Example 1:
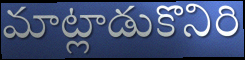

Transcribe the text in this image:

మాట్లాడుకొనిరి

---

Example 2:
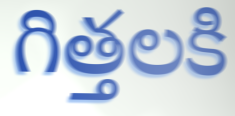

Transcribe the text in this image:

గిత్తలకి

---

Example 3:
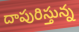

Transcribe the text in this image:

దాపురిస్తున్న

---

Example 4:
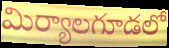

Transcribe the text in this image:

మిర్యాలగూడలో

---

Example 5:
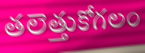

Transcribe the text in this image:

తలెత్తుకోగలం